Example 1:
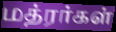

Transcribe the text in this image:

மத்ரர்கள்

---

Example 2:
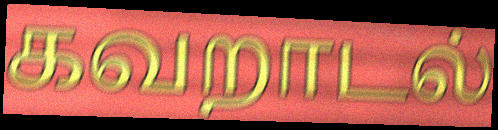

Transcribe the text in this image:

கவறாடல்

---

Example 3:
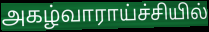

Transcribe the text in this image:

அகழ்வாராய்ச்சியில்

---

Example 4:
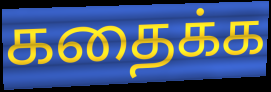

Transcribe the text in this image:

கதைக்க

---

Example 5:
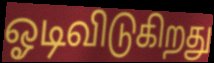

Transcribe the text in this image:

ஓடிவிடுகிறது